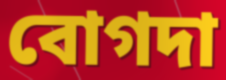
বোগদা